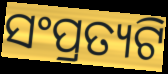
ସଂପ୍ରତ୍ୟଟି